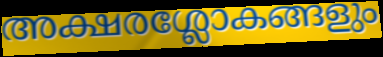
അക്ഷരശ്ലോകങ്ങളും